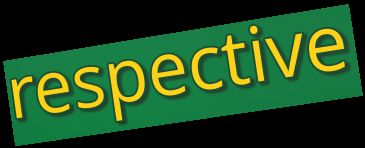
respective